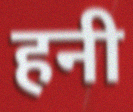
हनी